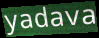
yadava